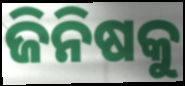
ଜିନିଷକୁ